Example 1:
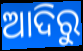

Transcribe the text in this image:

ଆଦିରୁ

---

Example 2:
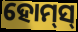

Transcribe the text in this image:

ହୋମ୍‌ସ୍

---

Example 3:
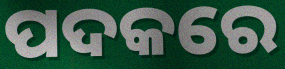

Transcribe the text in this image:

ପଦକରେ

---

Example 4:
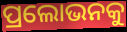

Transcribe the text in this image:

ପ୍ରଲୋଭନକୁ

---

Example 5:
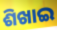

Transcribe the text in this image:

ଶିଖାଇ